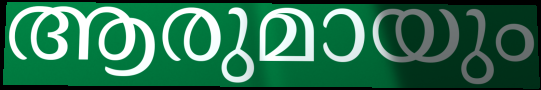
ആരുമായും